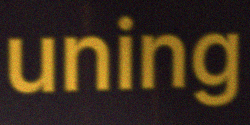
uning